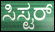
ಸಿಸ್ಟರ್